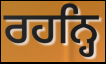
ਰਹਨ੍ਹਿ